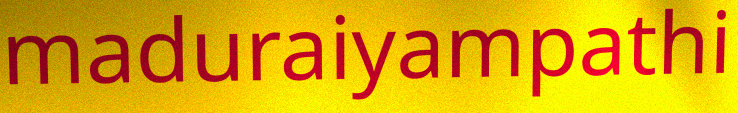
maduraiyampathi